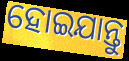
ହୋଇଯାନ୍ତୁ